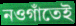
নওগাঁতেই